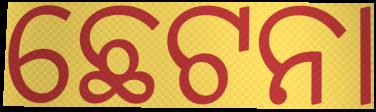
ଛେଟନା